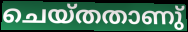
ചെയ്തതാണു്